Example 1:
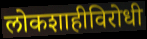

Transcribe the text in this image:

लोकशाहीविरोधी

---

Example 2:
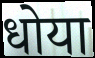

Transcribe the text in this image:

धोया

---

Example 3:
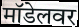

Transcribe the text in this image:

मॉडेलवर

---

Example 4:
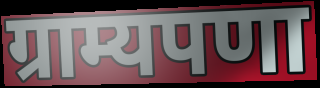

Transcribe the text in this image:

ग्राम्यपणा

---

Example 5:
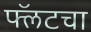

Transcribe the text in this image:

फ्लॅटचा